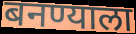
बनण्याला